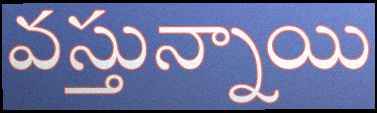
వస్తున్నాయి